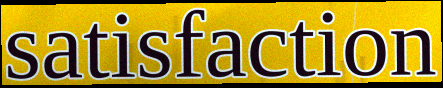
satisfaction